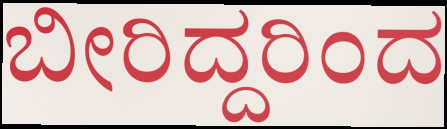
ಬೀರಿದ್ದರಿಂದ